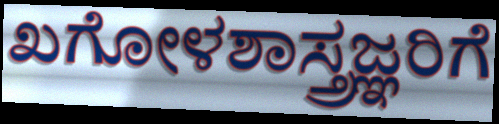
ಖಗೋಳಶಾಸ್ತ್ರಜ್ಞರಿಗೆ